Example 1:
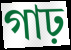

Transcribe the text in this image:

গাঢ়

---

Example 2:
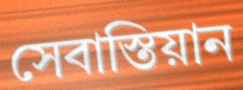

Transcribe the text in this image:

সেবাস্তিয়ান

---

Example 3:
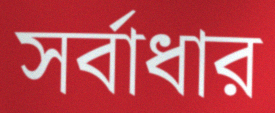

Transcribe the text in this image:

সর্বাধার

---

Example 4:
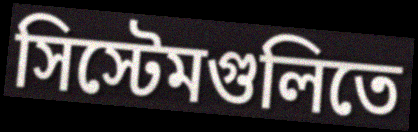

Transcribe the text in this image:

সিস্টেমগুলিতে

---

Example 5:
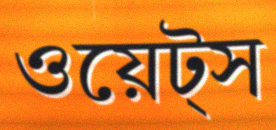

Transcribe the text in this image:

ওয়েট্স